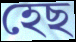
হেছ